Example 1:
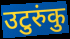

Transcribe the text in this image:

उटुरुंकु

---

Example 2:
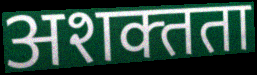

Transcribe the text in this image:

अशक्‍तता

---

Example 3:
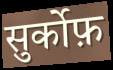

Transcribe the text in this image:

सुर्कोफ़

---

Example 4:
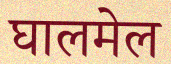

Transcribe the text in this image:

घालमेल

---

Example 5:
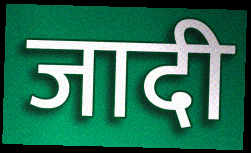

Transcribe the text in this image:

जादी